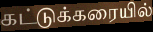
கட்டுக்கரையில்